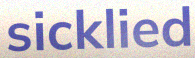
sicklied